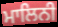
ਮਾਲਿਨੀ